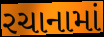
રચાનામાં